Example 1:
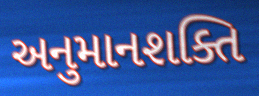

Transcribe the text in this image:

અનુમાનશક્તિ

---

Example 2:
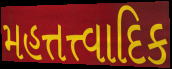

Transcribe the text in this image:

મહત્તત્ત્વાદિક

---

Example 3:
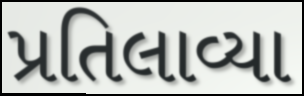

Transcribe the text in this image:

પ્રતિલાવ્યા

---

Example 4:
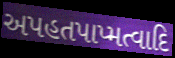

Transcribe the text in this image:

અપહતપાપ્મત્વાદિ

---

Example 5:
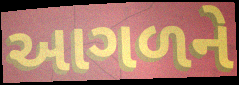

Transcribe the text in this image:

આગળને